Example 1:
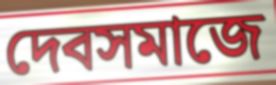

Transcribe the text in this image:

দেবসমাজে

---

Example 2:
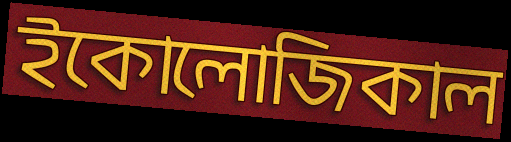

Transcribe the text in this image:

ইকোলোজিকাল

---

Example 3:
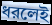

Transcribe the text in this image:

ধরলেই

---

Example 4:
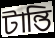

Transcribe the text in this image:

টান্তি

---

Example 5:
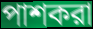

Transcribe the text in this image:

পাশকরা